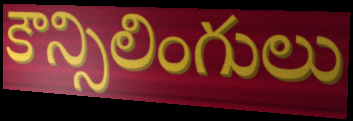
కౌన్సిలింగులు